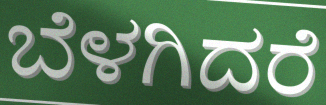
ಬೆಳಗಿದರೆ